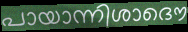
പായാന്നിശാദൌ